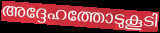
അദ്ദേഹത്തോടുകൂടി